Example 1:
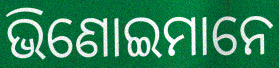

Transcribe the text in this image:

ଭିଣୋଇମାନେ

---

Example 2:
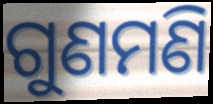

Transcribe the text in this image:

ଗୁଣମଣି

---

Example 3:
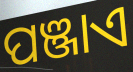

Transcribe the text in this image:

ପଞ୍ଜାଏ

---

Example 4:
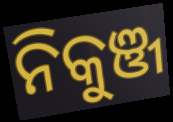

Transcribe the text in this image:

ନିକୁଞ୍ଜ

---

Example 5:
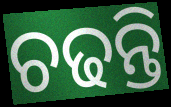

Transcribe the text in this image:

ଚଢନ୍ତି